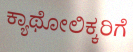
ಕ್ಯಾಥೋಲಿಕ್ಕರಿಗೆ